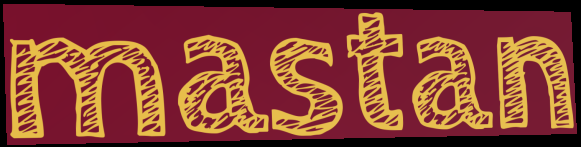
mastan